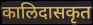
कालिदासकृत